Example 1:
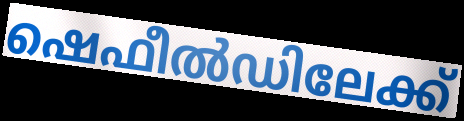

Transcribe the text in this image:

ഷെഫീൽഡിലേക്ക്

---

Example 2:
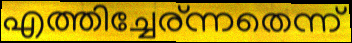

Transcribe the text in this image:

എത്തിച്ചേര്ന്നതെന്ന്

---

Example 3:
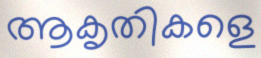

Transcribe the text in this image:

ആകൃതികളെ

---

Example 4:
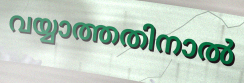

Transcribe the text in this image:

വയ്യാത്തതിനാൽ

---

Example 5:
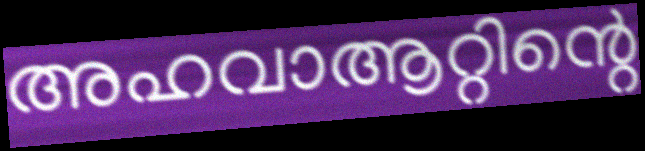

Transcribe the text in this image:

അഹവാആറ്റിന്റെ